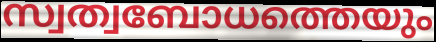
സ്വത്വബോധത്തെയും